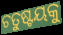
ଚତୁଷ୍ଟୟକୁ